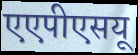
एएपीएसयू